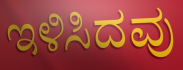
ಇಳಿಸಿದವು